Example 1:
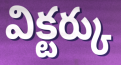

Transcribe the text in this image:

విక్టర్కు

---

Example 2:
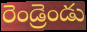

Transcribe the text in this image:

రెండ్రెండు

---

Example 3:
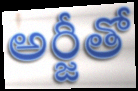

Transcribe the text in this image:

అర్జీతో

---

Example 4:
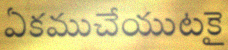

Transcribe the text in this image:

ఏకముచేయుటకై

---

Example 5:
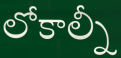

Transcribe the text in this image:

లోకాల్నీ